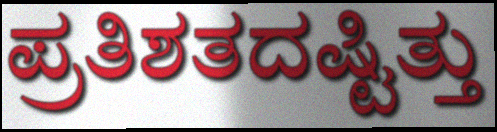
ಪ್ರತಿಶತದಷ್ಟಿತ್ತು